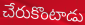
చేరుకొంటాడు